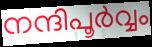
നന്ദിപൂർവ്വം